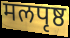
मलपृष्ठ